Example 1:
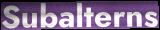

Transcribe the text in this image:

Subalterns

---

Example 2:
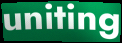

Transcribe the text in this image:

uniting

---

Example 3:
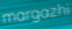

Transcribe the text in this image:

margazhi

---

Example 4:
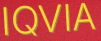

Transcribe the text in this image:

IQVIA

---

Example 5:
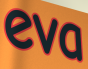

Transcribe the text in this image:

eva